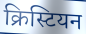
क्रिस्टियन